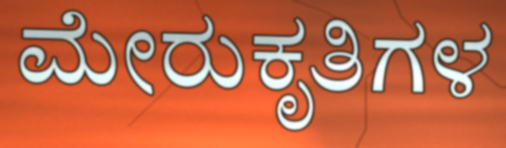
ಮೇರುಕೃತಿಗಳ